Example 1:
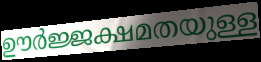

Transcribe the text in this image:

ഊർജ്ജക്ഷമതയുള്ള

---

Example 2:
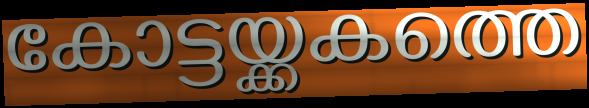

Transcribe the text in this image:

കോട്ടയ്ക്കകത്തെ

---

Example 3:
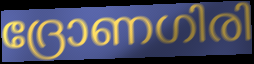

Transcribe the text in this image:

ദ്രോണഗിരി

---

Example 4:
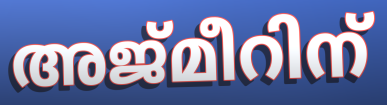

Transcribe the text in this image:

അജ്മീറിന്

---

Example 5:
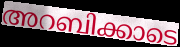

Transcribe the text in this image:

അറബിക്കാടെ